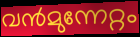
വൻമുന്നേറ്റം